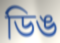
ডিঙ